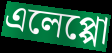
এলেপ্পো